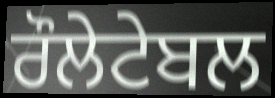
ਰੌਲੇਟੇਬਲ